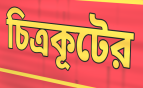
চিত্রকূটের